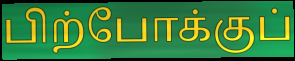
பிற்போக்குப்